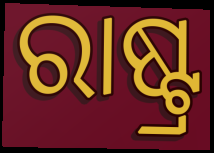
ରାଷ୍ଟ୍ର